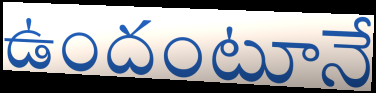
ఉందంటూనే